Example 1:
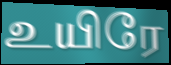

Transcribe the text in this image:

உயிரே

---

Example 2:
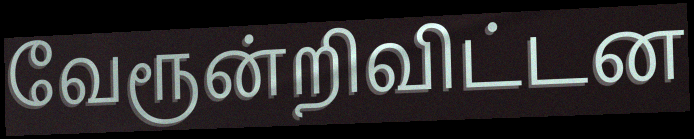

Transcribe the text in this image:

வேரூன்றிவிட்டன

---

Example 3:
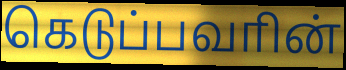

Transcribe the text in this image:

கெடுப்பவரின்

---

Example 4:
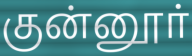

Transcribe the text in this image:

குன்னூர்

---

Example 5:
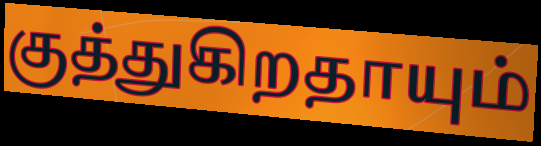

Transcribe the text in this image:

குத்துகிறதாயும்